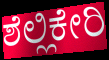
ಶೆಲ್ಲಿಕೇರಿ